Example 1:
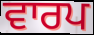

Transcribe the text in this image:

ਵਾਰਪ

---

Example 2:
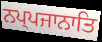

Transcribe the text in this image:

ਨਪ੍ਪਜਾਨਾਤਿ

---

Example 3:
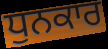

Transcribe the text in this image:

ਧੁਨਕਾਰ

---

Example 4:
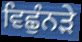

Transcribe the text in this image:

ਵਿਛੁੰਨੜੇ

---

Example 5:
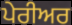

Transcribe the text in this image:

ਪੇਰੀਅਰ